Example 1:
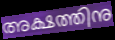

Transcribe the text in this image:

അക്ഷത്തിനു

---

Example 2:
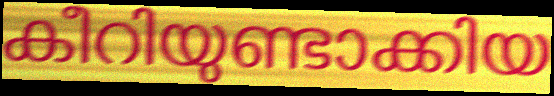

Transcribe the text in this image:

കീറിയുണ്ടാക്കിയ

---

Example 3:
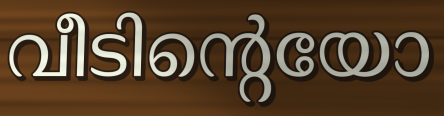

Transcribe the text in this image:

വീടിന്റെയോ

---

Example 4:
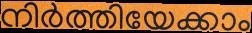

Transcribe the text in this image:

നിർത്തിയേക്കാം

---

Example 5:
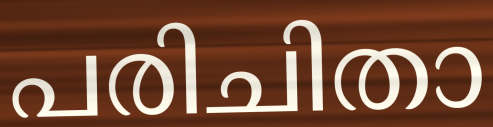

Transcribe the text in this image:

പരിചിതാ